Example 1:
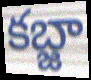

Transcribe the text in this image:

కబ్జా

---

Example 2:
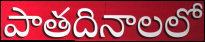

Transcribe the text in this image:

పాతదినాలలో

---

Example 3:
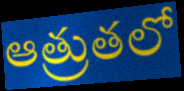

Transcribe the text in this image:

ఆత్రుతలో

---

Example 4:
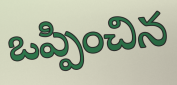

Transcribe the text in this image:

ఒప్పించిన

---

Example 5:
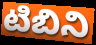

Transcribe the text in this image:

టిబిని